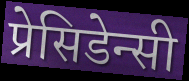
प्रेसिडेन्सी